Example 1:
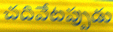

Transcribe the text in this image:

చదివేటప్పుడు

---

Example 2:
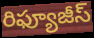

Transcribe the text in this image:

రిఫ్యూజీస్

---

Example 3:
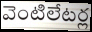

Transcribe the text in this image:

వెంటిలేటర్ల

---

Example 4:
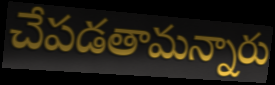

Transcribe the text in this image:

చేపడతామన్నారు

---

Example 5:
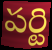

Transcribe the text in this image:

పర్టి